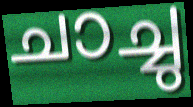
ചാച്ചു